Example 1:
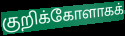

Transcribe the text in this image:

குறிக்கோளாகக்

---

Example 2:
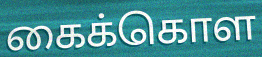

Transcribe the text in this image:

கைக்கொள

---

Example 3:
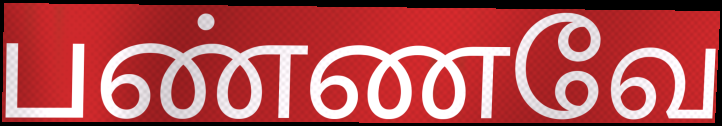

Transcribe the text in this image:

பண்ணவே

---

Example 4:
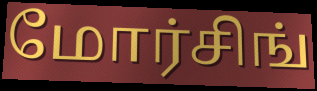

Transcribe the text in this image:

மோர்சிங்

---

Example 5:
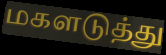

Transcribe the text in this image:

மகளடுத்து